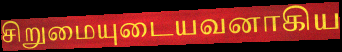
சிறுமையுடையவனாகிய